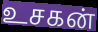
உசகன்